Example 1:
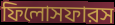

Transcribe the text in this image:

ফিলোসফারস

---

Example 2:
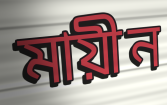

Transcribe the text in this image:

মায়ীন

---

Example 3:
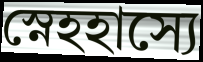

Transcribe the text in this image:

স্নেহহাস্যে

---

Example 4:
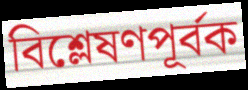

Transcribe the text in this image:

বিশ্লেষণপূর্বক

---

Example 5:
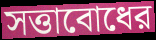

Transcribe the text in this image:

সত্তাবোধের